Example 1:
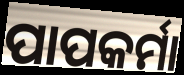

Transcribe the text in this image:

ପାପକର୍ମା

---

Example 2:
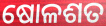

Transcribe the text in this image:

ଷୋଳଶତ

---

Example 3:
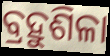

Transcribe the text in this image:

ବ୍ରହୁଶିଳା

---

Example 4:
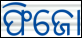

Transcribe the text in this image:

ଫିଜୋ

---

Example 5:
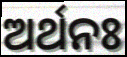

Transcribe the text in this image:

ଅର୍ଥନଃ